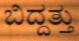
ಬಿದ್ದತ್ತು